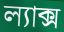
ল্যাক্স